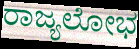
ರಾಜ್ಯಲೋಭ